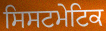
ਸਿਸਟਮੇਟਿਕ